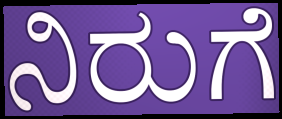
ನಿರುಗೆ